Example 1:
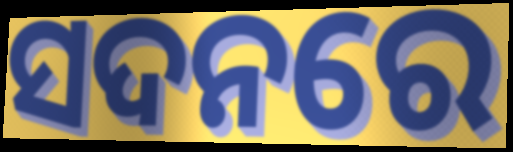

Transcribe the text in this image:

ସଦନରେ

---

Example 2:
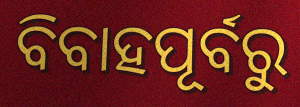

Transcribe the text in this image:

ବିବାହପୂର୍ବରୁ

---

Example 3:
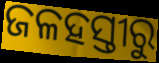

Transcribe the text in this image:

ଜଳହସ୍ତୀରୁ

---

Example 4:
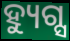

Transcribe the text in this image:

ହ୍ୟୁଗ୍ସ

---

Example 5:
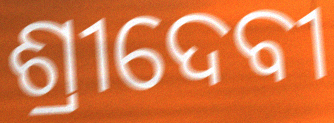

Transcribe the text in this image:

ଶ୍ରୀଦେବୀ